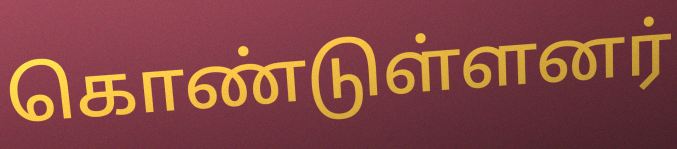
கொண்டுள்ளனர்